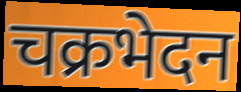
चक्रभेदन